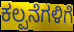
ಕಲ್ಪನೆಗಳಿಗೆ